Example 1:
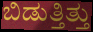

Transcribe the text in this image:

ಬಿಡುತ್ತಿತ್ತು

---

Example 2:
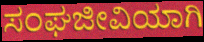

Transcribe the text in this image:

ಸಂಘಜೀವಿಯಾಗಿ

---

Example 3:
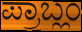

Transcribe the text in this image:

ಪ್ರಾಬ್ಲಂ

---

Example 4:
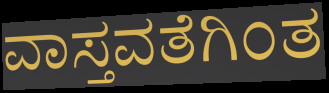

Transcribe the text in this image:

ವಾಸ್ತವತೆಗಿಂತ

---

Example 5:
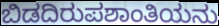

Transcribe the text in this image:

ಬಿಡದಿರುಪಶಾಂತಿಯನು